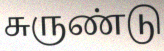
சுருண்டு